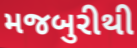
મજબુરીથી